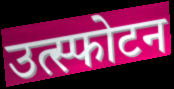
उत्स्फोटन